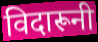
विदारूनी